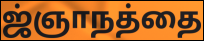
ஜ்ஞாநத்தை